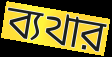
ব্যথার